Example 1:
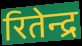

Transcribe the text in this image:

रितेन्द्र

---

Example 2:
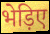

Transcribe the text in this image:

भेड़िए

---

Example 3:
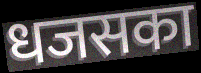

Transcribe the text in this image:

धजसका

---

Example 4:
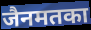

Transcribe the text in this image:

जैनमतका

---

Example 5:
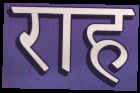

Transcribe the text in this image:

राह